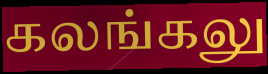
கலங்கலு